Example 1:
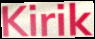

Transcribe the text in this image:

Kirik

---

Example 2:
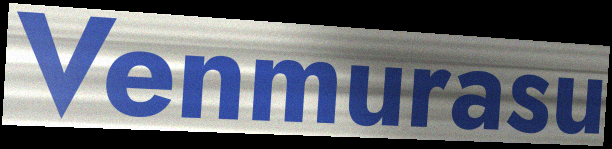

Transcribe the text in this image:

Venmurasu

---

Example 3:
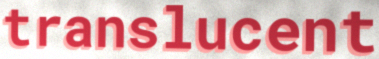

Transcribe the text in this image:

translucent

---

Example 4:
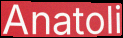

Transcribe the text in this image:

Anatoli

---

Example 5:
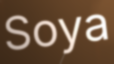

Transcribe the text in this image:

Soya